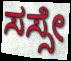
ಸಸ್ಸೇ